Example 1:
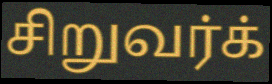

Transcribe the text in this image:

சிறுவர்க்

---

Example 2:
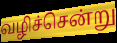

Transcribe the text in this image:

வழிச்சென்று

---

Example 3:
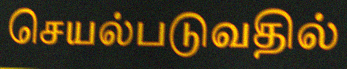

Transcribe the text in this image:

செயல்படுவதில்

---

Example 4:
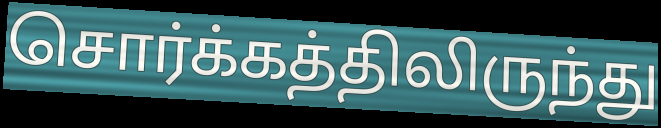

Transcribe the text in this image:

சொர்க்கத்திலிருந்து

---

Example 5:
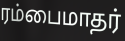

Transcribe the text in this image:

ரம்பைமாதர்